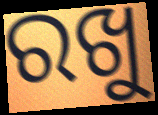
ରଖୁ